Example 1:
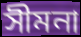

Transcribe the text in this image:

সীমনা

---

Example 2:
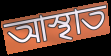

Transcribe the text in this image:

আস্থাত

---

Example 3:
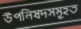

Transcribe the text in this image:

উপনিষদসমূহত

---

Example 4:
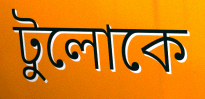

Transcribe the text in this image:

টুলোকে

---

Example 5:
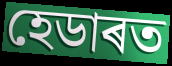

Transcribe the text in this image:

হেডাৰত